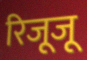
रिजूजू